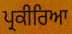
ਪ੍ਰਕੀਰਿਆ